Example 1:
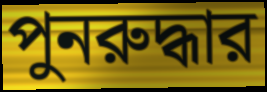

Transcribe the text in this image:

পুনরুদ্ধার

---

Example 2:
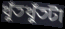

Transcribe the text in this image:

খুঁতখুঁতটা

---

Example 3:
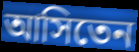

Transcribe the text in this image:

আসিতেন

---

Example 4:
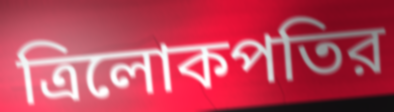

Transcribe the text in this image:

ত্রিলোকপতির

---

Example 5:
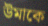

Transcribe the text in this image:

উমাকে